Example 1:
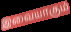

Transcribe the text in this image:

இவையாகும்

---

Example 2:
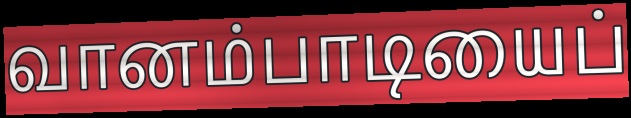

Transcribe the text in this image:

வானம்பாடியைப்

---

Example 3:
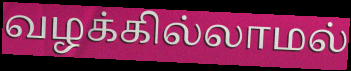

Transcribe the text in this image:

வழக்கில்லாமல்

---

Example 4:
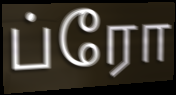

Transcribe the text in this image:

ப்ரோ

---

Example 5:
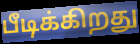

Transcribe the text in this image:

பீடிக்கிறது